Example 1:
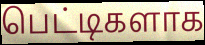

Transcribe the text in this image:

பெட்டிகளாக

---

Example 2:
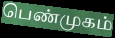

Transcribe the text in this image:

பெண்முகம்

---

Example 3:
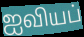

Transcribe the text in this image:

ஐவியப்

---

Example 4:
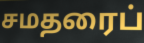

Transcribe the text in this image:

சமதரைப்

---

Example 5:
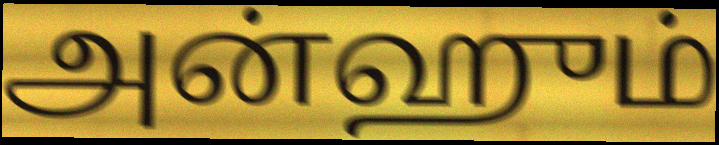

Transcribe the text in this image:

அன்ஹும்